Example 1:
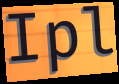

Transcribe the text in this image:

Ipl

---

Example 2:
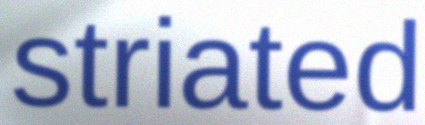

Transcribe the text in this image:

striated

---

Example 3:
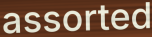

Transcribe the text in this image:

assorted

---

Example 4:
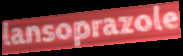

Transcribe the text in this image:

lansoprazole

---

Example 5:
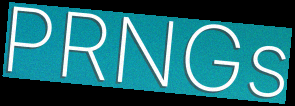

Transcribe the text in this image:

PRNGs